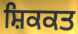
ਸ਼ਿਕਕਤ